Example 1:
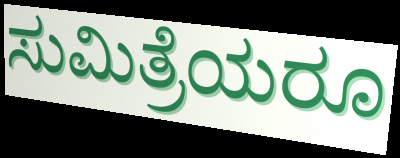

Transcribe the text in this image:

ಸುಮಿತ್ರೆಯರೂ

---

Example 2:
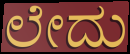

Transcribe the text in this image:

ಲೇದು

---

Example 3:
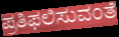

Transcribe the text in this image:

ಪ್ರತಿಫಲಿಸುವಂತೆ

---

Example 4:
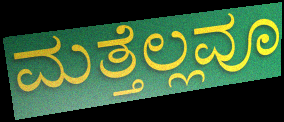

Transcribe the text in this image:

ಮತ್ತೆಲ್ಲವೂ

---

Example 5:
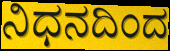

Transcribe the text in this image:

ನಿಧನದಿಂದ